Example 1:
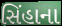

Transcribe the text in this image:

સિંહાના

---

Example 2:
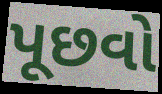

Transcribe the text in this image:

પૂછવો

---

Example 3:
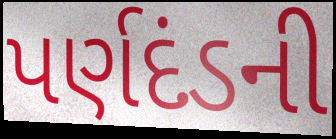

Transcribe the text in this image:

પર્ણદંડની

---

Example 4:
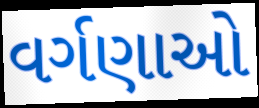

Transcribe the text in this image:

વર્ગણાઓ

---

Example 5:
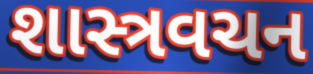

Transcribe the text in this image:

શાસ્ત્રવચન